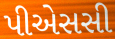
પીએસસી